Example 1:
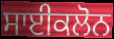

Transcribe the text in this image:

ਸਾਈਕਲੋਨ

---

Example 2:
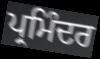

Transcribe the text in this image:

ਪ੍ਰਮਿੰਦਰ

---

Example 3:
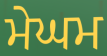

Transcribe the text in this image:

ਮੇਘਮ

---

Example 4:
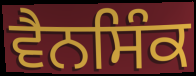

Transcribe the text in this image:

ਵੈਨਸਿੰਕ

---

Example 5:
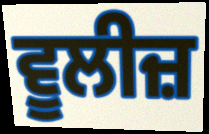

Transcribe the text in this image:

ਵੂਲੀਜ਼